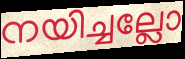
നയിച്ചല്ലോ